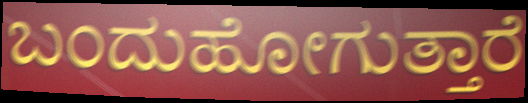
ಬಂದುಹೋಗುತ್ತಾರೆ